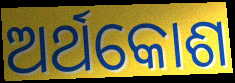
ଅର୍ଥକୋଶ